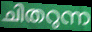
ചിതറുന്ന